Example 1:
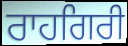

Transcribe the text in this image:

ਰਾਹਗਿਰੀ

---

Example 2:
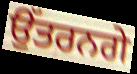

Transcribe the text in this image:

ਉੱਤਰਨਗੇ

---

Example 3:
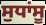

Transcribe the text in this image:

ਸੁਧਾਂਸੂ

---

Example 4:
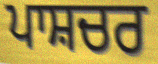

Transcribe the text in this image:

ਪਾਸ਼ਚਰ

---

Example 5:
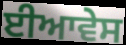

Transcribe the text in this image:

ਈਆਵੇਸ